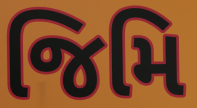
જિમિ